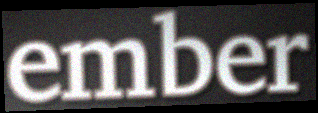
ember